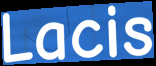
Lacis